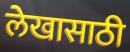
लेखासाठी